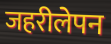
जहरीलेपन